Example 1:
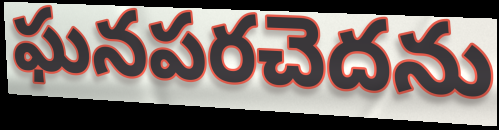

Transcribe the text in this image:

ఘనపరచెదను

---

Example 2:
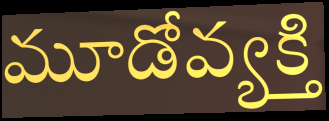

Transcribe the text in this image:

మూడోవ్యక్తి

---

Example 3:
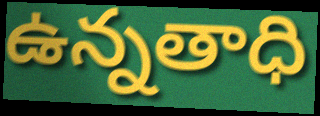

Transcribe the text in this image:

ఉన్నతాధి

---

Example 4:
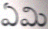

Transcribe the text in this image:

ఏమి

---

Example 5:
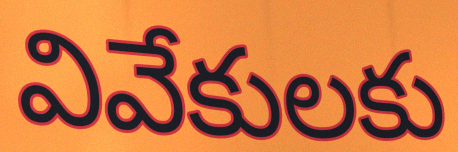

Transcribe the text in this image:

వివేకులకు